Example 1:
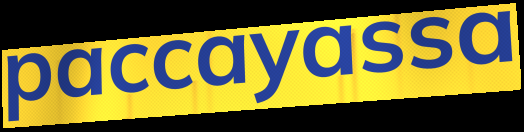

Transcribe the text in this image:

paccayassa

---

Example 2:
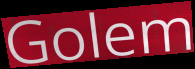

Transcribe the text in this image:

Golem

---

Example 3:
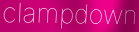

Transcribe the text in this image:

clampdown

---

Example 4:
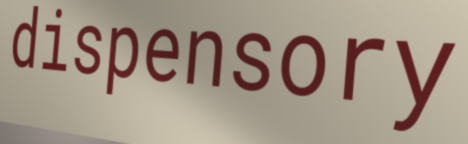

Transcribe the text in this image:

dispensory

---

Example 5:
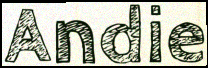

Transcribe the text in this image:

Andie